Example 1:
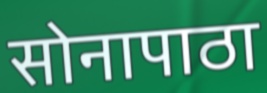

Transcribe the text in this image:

सोनापाठा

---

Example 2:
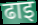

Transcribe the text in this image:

ढाइ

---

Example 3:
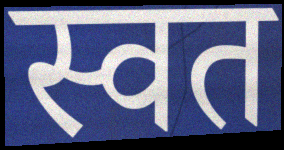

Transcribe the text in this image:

स्वत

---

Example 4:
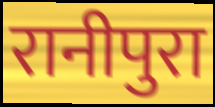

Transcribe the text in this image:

रानीपुरा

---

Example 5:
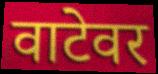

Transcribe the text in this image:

वाटेवर